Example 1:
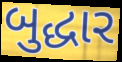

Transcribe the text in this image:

બુદ્ધાર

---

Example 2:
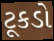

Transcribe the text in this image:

ટૂકડો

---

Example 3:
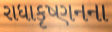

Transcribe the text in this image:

રાધાકૃષ્ણનના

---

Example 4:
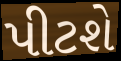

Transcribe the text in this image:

પીટશે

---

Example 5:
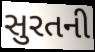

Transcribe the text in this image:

સુરતની